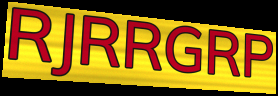
RJRRGRP